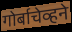
गोर्बाचेव्हने